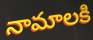
నామాలకి